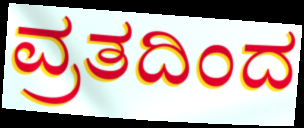
ವ್ರತದಿಂದ